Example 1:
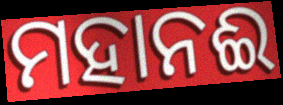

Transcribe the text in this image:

ମହାନଈ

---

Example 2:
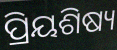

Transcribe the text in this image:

ପ୍ରିୟଶିଷ୍ୟ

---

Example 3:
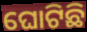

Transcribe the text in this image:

ଘୋଟିଛି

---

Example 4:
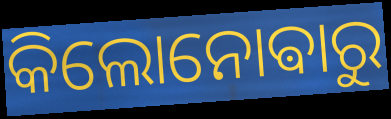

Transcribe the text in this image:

କିଲୋନୋଵାରୁ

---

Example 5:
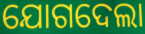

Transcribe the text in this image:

ଯୋଗଦେଲା